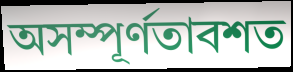
অসম্পূর্ণতাবশত